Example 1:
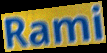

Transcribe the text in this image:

Rami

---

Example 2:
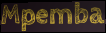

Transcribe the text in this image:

Mpemba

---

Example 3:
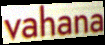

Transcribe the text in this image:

vahana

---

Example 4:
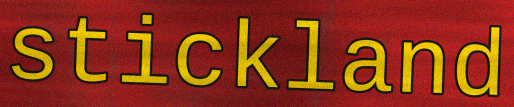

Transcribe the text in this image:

stickland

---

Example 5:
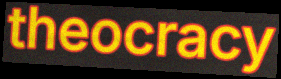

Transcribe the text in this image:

theocracy